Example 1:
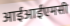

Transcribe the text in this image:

आईआईएमसी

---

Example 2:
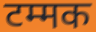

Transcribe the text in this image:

टम्मक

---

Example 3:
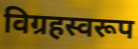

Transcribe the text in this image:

विग्रहस्वरूप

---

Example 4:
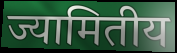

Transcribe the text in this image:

ज्यामितीय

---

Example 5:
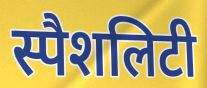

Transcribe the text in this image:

स्पैशलिटी